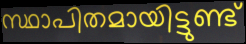
സ്ഥാപിതമായിട്ടുണ്ട്